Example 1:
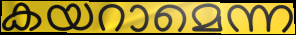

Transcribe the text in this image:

കയറാമെന്ന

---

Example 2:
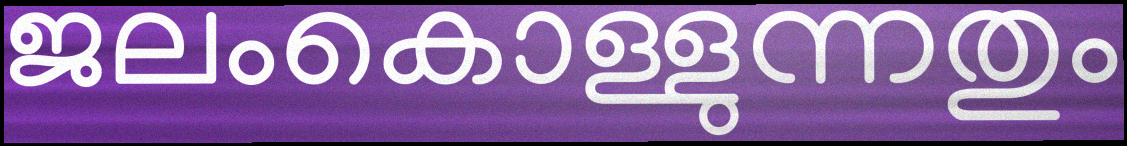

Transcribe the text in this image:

ജലംകൊള്ളുന്നതും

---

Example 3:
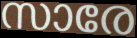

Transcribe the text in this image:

സാരേ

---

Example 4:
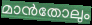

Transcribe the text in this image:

മാൻതോലും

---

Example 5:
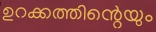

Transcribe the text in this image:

ഉറക്കത്തിന്റെയും